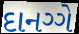
દાનગ્ગે